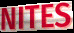
NITES